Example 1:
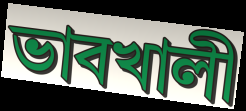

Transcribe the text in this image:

ভাবখালী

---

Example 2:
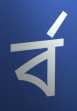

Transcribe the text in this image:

র্ব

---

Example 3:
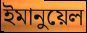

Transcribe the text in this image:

ইমানুয়েল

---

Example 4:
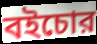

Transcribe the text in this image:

বইচোর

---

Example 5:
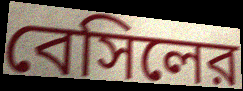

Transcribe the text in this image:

বেসিলের